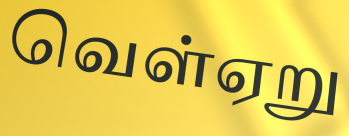
வெள்ஏறு